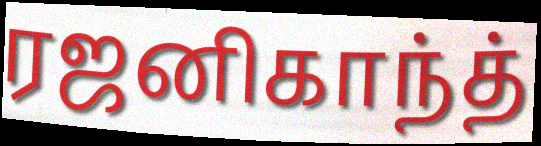
ரஜனிகாந்த்